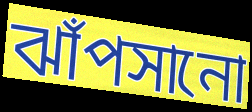
ঝাঁপসানো